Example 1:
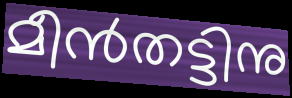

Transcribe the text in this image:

മീൻതട്ടിനു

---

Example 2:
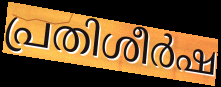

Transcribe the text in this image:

പ്രതിശീർഷ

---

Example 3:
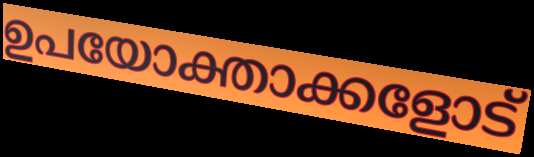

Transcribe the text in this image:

ഉപയോക്താക്കളോട്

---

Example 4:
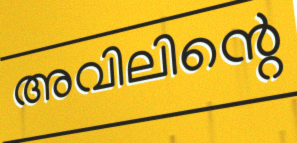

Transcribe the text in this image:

അവിലിന്റെ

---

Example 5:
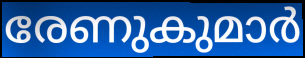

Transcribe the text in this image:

രേണുകുമാർ